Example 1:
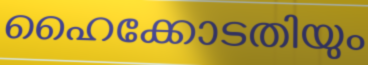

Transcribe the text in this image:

ഹൈക്കോടതിയും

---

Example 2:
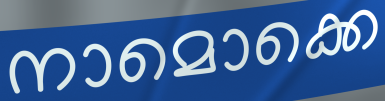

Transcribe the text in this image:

നാമൊക്കെ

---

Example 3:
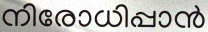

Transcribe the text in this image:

നിരോധിപ്പാൻ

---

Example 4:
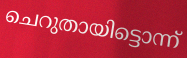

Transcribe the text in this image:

ചെറുതായിട്ടൊന്ന്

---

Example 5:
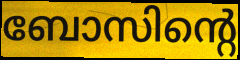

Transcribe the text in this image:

ബോസിന്റെ